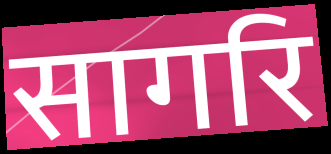
सागरि